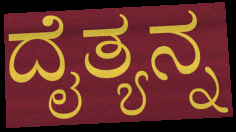
ದೈತ್ಯನ್ನ